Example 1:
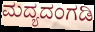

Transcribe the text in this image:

ಮದ್ಯದಂಗಡಿ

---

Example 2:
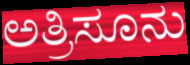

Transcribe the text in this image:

ಅತ್ರಿಸೂನು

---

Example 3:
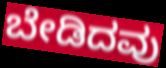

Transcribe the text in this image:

ಬೇಡಿದವು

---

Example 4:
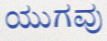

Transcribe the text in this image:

ಯುಗವು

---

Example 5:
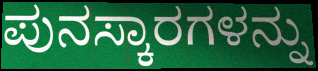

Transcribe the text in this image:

ಪುನಸ್ಕಾರಗಳನ್ನು